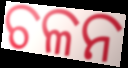
ଚଳନ